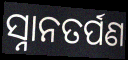
ସ୍ନାନତର୍ପଣ